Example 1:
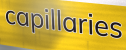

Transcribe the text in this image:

capillaries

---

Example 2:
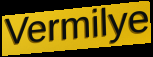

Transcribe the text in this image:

Vermilye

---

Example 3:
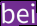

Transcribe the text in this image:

bei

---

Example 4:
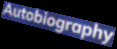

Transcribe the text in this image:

Autobiography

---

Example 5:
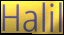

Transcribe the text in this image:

Halil